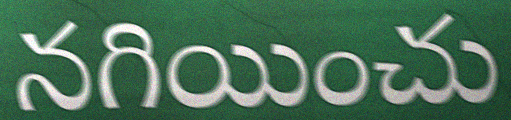
నగియించు